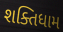
શક્તિધામ